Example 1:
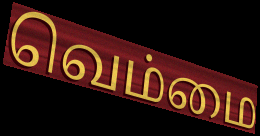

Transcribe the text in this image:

வெம்மை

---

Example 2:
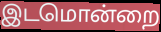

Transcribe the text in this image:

இடமொன்றை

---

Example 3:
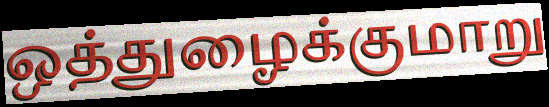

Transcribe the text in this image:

ஒத்துழைக்குமாறு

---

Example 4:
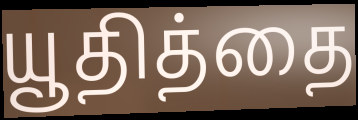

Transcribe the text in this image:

யூதித்தை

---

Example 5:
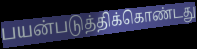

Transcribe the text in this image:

பயன்படுத்திக்கொண்டது